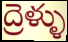
ద్రెళ్ళు